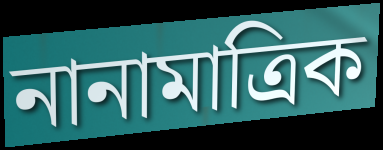
নানামাত্রিক